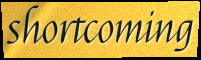
shortcoming